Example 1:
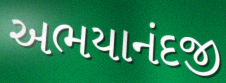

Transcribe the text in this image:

અભયાનંદજી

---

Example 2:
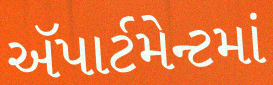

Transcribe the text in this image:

ઍપાર્ટમેન્ટમાં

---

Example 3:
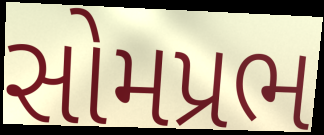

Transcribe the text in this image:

સોમપ્રભ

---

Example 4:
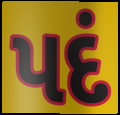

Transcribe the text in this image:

પદં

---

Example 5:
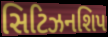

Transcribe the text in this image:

સિટિઝનશિપ